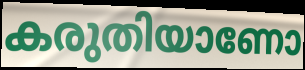
കരുതിയാണോ